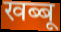
खब्बू